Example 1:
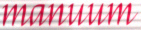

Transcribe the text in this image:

manuum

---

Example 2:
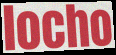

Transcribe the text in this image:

locho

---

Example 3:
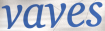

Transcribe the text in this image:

vaves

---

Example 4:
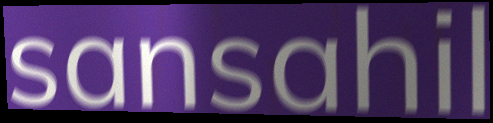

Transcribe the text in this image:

sansahil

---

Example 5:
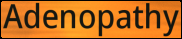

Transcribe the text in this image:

Adenopathy